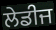
ਲੇਡੀਜ